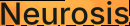
Neurosis